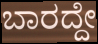
ಬಾರದ್ದೇ